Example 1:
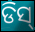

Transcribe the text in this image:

ଡିସ୍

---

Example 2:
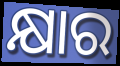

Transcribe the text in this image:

କ୍ଷାର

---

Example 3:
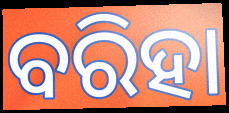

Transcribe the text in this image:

ବରିହା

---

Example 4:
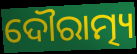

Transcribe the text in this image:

ଦୌରାତ୍ମ୍ୟ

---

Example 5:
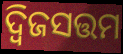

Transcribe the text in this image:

ଦ୍ୱିଜସତ୍ତମ